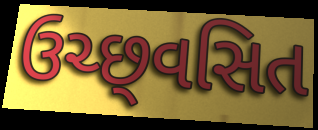
ઉચ્છ્‌વસિત